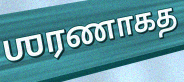
ஶரணாகத